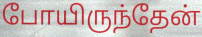
போயிருந்தேன்